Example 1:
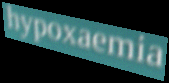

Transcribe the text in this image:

hypoxaemia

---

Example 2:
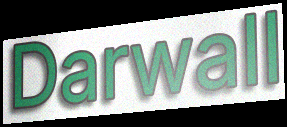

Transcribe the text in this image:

Darwall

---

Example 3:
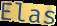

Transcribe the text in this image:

Elas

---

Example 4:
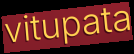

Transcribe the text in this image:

vitupata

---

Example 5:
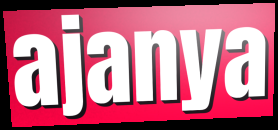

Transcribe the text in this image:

ajanya